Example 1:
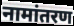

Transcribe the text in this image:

नामांतरण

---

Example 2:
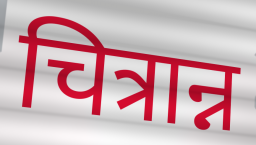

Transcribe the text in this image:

चित्रान्न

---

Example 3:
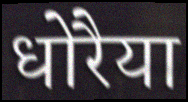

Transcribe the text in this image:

धोरैया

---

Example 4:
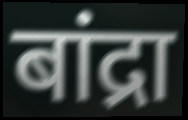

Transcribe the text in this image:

बांद्रा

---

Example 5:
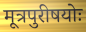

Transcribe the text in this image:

मूत्रपुरीषयोः